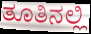
ತೂತಿನಲ್ಲಿ